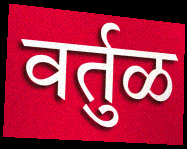
वर्तुळ